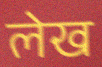
लेख